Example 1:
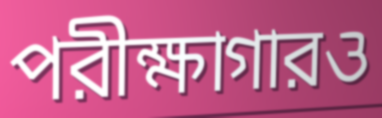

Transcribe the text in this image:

পরীক্ষাগারও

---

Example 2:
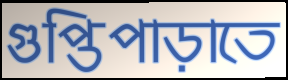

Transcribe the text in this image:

গুপ্তিপাড়াতে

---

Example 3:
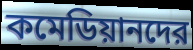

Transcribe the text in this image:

কমেডিয়ানদের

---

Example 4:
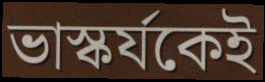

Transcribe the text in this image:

ভাস্কর্যকেই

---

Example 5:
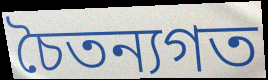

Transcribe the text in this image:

চৈতন্যগত